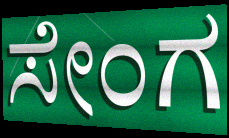
ಸೇಂಗ